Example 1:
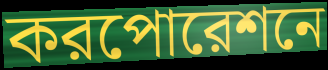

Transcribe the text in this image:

করপোরেশনে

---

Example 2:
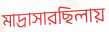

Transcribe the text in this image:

মাদ্রাসারছিলায়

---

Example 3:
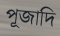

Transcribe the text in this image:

পূজাদি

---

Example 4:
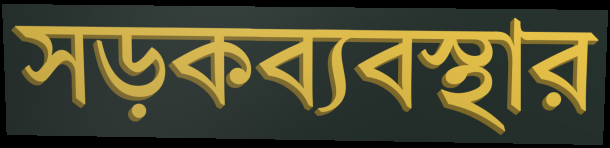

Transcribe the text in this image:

সড়কব্যবস্থার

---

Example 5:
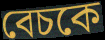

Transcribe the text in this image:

বেচকে